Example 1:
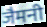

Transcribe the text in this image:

जैमनी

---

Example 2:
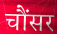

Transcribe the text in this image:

चौंसर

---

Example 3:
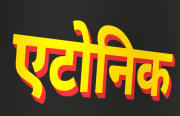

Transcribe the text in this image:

एटोनिक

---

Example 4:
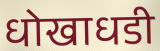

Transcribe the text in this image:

धोखाधडी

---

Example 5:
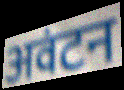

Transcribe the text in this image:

अवंटन